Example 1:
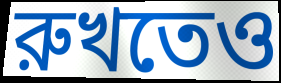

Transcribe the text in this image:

রুখতেও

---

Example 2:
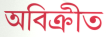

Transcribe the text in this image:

অবিক্রীত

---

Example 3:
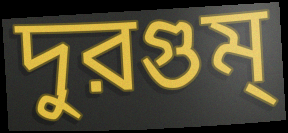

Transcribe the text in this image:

দুরগুম্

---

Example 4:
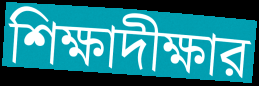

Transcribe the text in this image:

শিক্ষাদীক্ষার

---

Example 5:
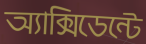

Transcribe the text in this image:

অ্যাক্সিডেন্টে